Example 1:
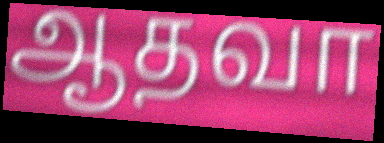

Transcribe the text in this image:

ஆதவா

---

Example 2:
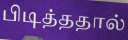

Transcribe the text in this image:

பிடித்ததால்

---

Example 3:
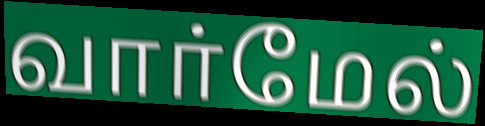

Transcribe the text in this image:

வார்மேல்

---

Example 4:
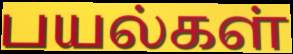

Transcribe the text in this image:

பயல்கள்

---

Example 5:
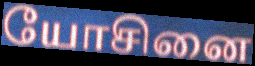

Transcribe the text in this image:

யோசினை